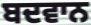
ਬਦਵਾਨ